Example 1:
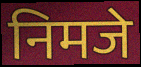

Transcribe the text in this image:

निमजे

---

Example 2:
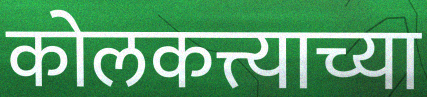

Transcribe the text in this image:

कोलकत्त्याच्या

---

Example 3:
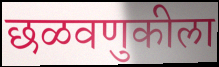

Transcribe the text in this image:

छळवणुकीला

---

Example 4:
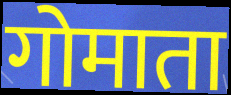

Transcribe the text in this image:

गोमाता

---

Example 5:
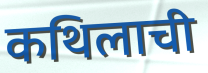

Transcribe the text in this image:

कथिलाची